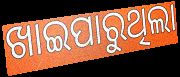
ଖାଇପାରୁଥିଲା